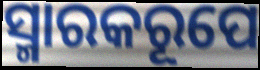
ସ୍ମାରକରୂପେ